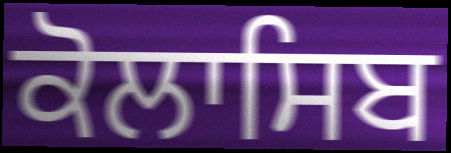
ਕੋਲਾਸਿਬ